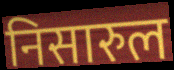
निसारुल